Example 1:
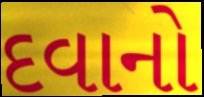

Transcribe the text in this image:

દવાનો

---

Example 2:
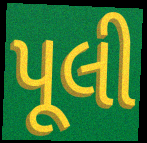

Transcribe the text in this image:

પૂલી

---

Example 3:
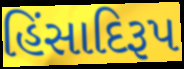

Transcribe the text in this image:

હિંસાદિરૂપ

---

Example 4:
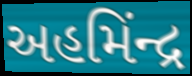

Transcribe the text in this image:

અહમિંન્દ્ર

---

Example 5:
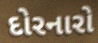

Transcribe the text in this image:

દોરનારો